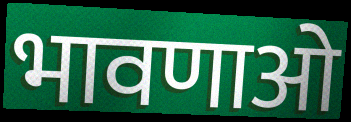
भावणाओ